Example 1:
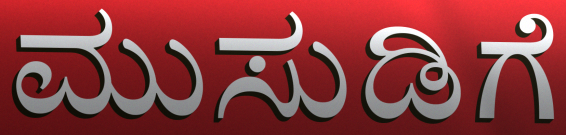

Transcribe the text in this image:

ಮುಸುಡಿಗೆ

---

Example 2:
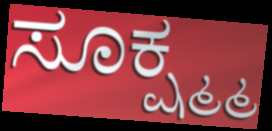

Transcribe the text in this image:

ಸೂಕ್ಷ್ಮ್ಮ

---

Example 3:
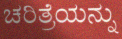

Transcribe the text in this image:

ಚರಿತ್ರೆಯನ್ನು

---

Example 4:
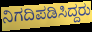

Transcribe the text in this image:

ನಿಗದಿಪಡಿಸಿದ್ದರು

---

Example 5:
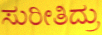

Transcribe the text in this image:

ಸುರೀತಿದ್ರು